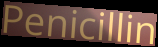
Penicillin